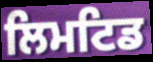
ਲਿਮਟਿਡ